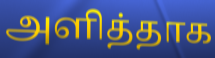
அளித்தாக